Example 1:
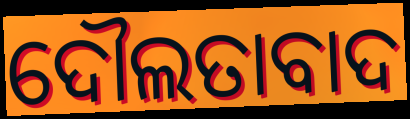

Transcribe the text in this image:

ଦୌଲତାବାଦ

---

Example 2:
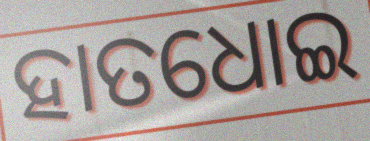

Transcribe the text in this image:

ହାତଧୋଇ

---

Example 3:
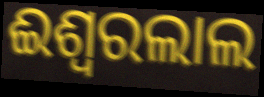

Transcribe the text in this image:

ଈଶ୍ଵରଲାଲ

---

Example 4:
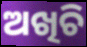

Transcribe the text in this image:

ଅଖିଚି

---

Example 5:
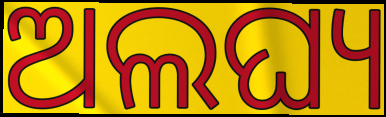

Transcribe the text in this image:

ଅଲଘ୍ୟ